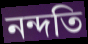
নন্দতি